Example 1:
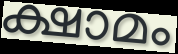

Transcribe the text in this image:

ക്ഷാമം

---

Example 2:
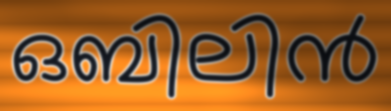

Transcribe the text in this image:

ഒബിലിൻ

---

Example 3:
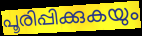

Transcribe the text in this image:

പൂരിപ്പിക്കുകയും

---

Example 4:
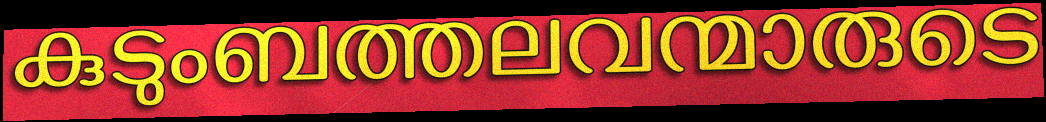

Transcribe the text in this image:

കുടുംബത്തലവന്മാരുടെ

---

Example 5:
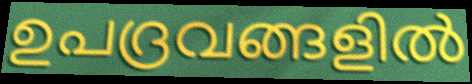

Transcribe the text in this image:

ഉപദ്രവങ്ങളിൽ